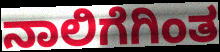
ನಾಲಿಗೆಗಿಂತ